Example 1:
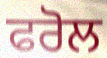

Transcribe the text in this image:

ਫਰੋਲ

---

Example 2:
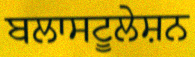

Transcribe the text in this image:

ਬਲਾਸਟੂਲੇਸ਼ਨ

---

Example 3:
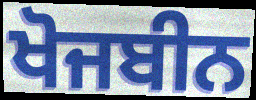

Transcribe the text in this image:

ਖੋਜਬੀਨ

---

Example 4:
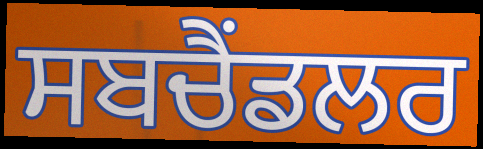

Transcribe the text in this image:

ਸਬਚੈਂਡਲਰ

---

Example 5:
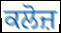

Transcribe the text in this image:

ਕਲੋਜ਼